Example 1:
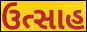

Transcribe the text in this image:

ઉત્સાહ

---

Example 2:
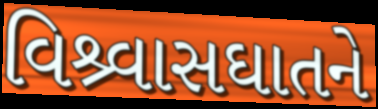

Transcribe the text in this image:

વિશ્ર્વાસઘાતને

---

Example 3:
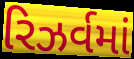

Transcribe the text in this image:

રિઝર્વમાં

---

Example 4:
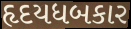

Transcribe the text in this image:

હૃદયધબકાર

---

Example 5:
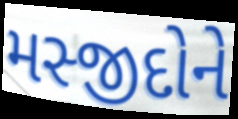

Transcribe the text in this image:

મસ્જીદોને